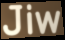
Jiw